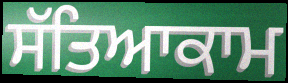
ਸੱਤਿਆਕਾਮ